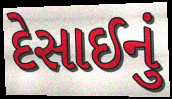
દેસાઈનું